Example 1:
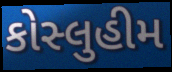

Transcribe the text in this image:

કોસ્લુહીમ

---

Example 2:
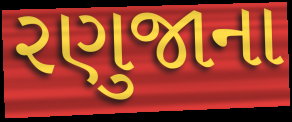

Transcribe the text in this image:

રણુજાના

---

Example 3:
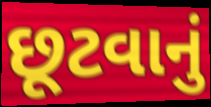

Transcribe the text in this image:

છૂટવાનું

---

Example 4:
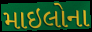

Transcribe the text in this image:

માઇલોના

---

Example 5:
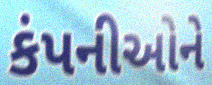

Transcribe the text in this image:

કંપનીઓને